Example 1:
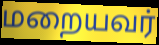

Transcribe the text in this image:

மறையவர்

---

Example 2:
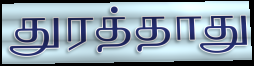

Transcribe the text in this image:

துரத்தாது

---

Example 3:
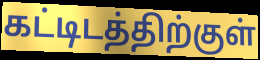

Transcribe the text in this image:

கட்டிடத்திற்குள்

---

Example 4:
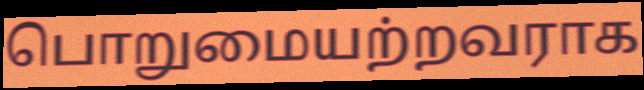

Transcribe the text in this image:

பொறுமையற்றவராக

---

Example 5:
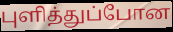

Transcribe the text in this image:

புளித்துப்போன